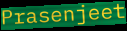
Prasenjeet